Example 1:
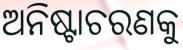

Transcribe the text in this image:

ଅନିଷ୍ଟାଚରଣକୁ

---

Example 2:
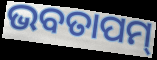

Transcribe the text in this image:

ଭବତାପମ୍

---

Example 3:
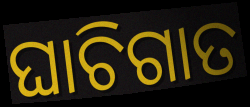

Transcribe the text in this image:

ଘାଚିଗାତ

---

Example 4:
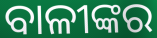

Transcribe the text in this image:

ବାଳୀଙ୍କର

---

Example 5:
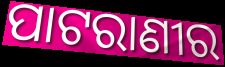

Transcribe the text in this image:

ପାଟରାଣୀର